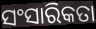
ସଂସାରିକତା